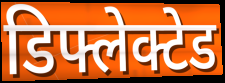
डिफ्लेक्टेड